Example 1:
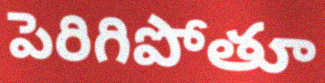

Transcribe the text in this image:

పెరిగిపోతూ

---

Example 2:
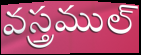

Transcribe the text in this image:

వస్త్రముల్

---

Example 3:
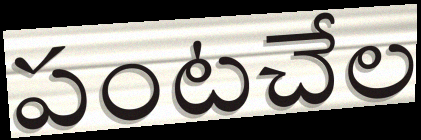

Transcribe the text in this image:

పంటచేల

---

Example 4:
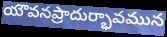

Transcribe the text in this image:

యౌవనప్రాదుర్భావమున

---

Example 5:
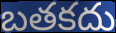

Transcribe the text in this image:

బతకదు